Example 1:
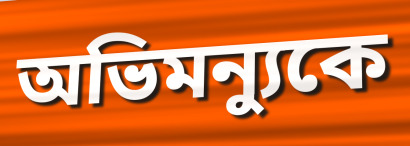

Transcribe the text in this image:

অভিমন্যুকে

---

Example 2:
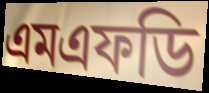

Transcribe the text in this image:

এমএফডি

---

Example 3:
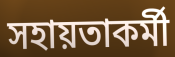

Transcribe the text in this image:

সহায়তাকর্মী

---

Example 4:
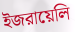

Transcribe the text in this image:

ইজরায়েলি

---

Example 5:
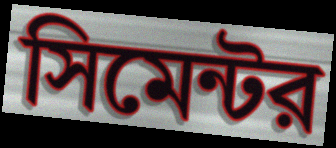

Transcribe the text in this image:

সিমেন্টর